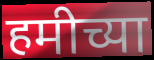
हमीच्या